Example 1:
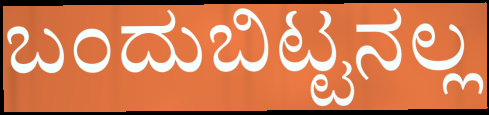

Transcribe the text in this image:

ಬಂದುಬಿಟ್ಟನಲ್ಲ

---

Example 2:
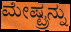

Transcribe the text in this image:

ಮೇಷ್ಟ್ರನ್ನು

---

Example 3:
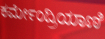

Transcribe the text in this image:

ಕರ್ಮೇಂದ್ರಿಯಾಣಿ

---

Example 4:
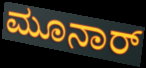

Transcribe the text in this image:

ಮೂನಾರ್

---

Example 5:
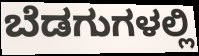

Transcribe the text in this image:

ಬೆಡಗುಗಳಲ್ಲಿ